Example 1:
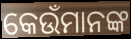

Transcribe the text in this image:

କେଉଁମାନଙ୍କ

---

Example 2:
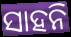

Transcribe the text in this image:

ସାହନି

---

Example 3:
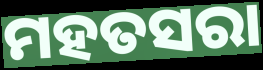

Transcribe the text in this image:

ମହତସରା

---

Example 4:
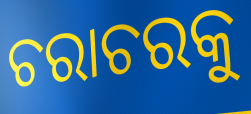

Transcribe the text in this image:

ଚରାଚରକୁ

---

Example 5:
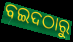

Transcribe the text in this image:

ବଇଦଠାରୁ